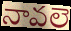
నావలె